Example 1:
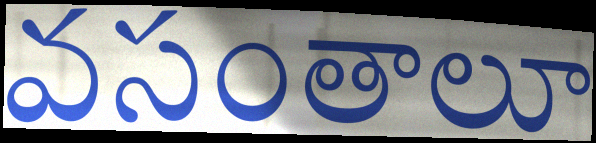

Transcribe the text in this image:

వసంతాలూ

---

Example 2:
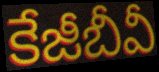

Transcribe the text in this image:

కేజీబీవీ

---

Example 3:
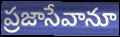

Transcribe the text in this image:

ప్రజాసేవానూ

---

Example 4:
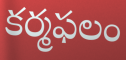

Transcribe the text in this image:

కర్మఫలం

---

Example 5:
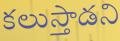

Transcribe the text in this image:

కలుస్తాడని